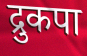
द्रुकपा